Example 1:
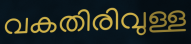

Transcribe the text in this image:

വകതിരിവുള്ള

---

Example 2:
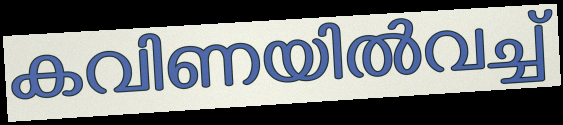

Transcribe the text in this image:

കവിണയിൽവച്ച്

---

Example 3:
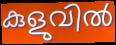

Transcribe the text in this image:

കുളുവിൽ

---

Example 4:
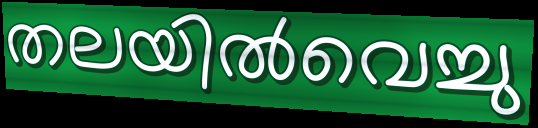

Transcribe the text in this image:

തലയിൽവെച്ചു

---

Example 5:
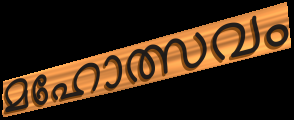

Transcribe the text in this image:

മഹോത്സവം